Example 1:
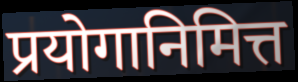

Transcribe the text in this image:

प्रयोगानिमित्त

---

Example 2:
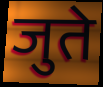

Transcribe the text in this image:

जुते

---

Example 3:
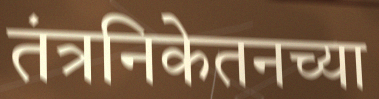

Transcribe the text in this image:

तंत्रनिकेतनच्या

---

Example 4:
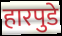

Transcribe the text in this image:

हारपुडे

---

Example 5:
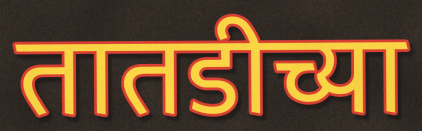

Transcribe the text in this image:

तातडीच्या